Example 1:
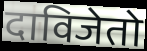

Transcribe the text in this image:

दाविजेतो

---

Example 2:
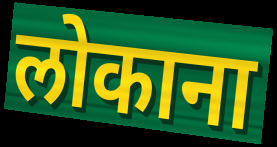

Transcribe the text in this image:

लोकाना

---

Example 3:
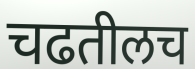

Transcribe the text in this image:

चढतीलच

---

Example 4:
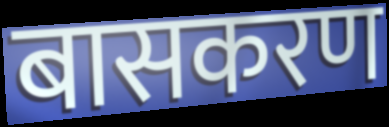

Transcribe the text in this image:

बासकरण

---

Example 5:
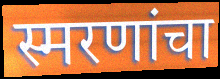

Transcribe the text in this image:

स्मरणांचा